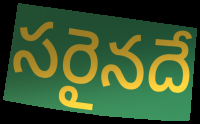
సరైనదే